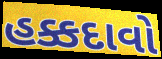
હક્કદાવો